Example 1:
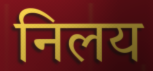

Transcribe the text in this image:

निलय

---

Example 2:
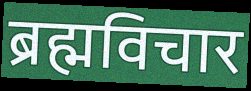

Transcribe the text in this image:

ब्रह्मविचार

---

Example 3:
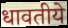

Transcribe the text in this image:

धावतीये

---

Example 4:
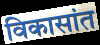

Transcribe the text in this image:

विकासांत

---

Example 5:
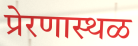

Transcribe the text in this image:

प्रेरणास्थळ